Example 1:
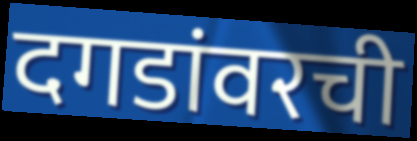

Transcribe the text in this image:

दगडांवरची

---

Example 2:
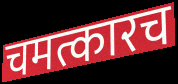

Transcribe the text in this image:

चमत्कारच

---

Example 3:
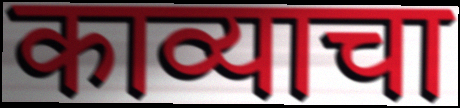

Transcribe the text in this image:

काव्याचा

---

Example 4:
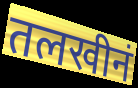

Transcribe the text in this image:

तलखीनं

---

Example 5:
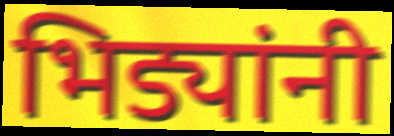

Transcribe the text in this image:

भिड्यांनी